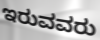
ಇರುವವರು